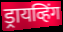
ड्रायव्हिंग